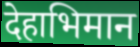
देहाभिमान